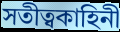
সতীত্বকাহিনী